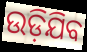
ଉଡ଼ିଯିବ